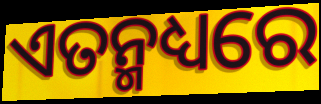
ଏତନ୍ମଧ୍ୟରେ